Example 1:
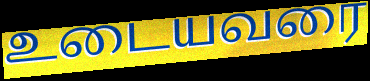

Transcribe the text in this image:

உடையவரை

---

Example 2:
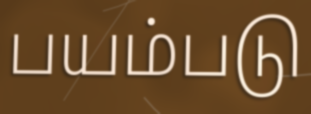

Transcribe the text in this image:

பயம்படு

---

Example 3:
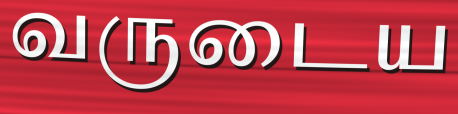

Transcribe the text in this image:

வருடைய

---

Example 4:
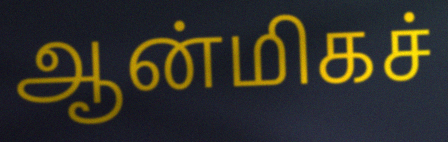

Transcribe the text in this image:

ஆன்மிகச்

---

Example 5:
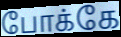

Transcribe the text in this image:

போக்கே